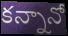
కన్నానో